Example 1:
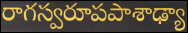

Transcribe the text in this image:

రాగస్వరూపపాశాఢ్యా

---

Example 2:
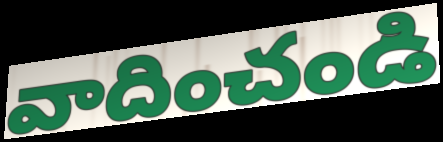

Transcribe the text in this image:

వాదించండి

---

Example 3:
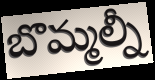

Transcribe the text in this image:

బొమ్మల్నీ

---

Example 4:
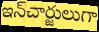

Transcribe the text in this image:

ఇన్‌చార్జులుగా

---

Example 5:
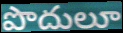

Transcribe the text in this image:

పొదులూ